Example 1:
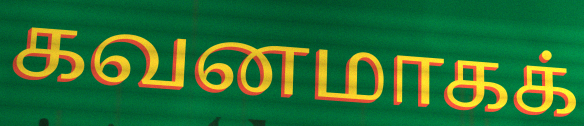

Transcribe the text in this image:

கவனமாகக்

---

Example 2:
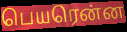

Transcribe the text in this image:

பெயரென்ன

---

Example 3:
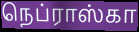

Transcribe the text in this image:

நெப்ராஸ்கா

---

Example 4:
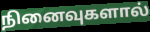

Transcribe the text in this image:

நினைவுகளால்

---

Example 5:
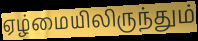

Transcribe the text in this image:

ஏழ்மையிலிருந்தும்